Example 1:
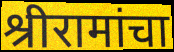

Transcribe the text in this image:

श्रीरामांचा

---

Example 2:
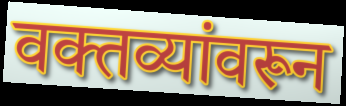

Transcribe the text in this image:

वक्तव्यांवरून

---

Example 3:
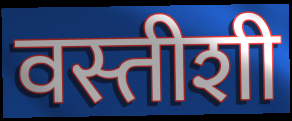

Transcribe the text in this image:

वस्‍तीशी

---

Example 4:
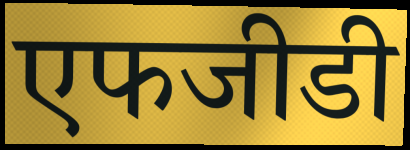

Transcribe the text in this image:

एफजीडी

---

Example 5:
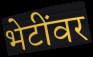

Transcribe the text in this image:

भेटींवर